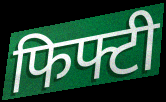
फिफ्टी